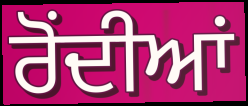
ਰੋਂਦੀਆਂ